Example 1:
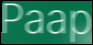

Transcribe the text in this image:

Paap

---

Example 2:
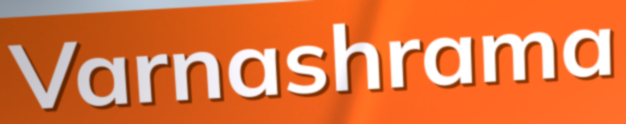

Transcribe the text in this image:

Varnashrama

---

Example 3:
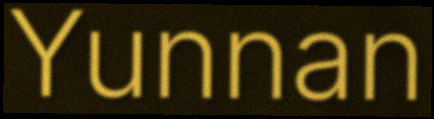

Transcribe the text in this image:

Yunnan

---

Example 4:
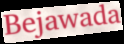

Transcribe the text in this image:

Bejawada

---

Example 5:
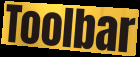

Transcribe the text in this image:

Toolbar